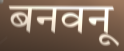
बनवनू